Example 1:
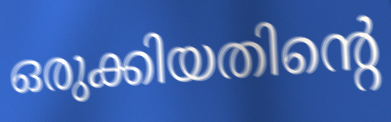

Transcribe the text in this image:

ഒരുക്കിയതിന്റെ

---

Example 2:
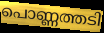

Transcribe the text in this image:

പൊണ്ണത്തടി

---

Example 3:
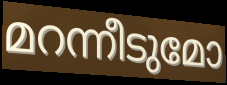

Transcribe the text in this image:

മറന്നീടുമോ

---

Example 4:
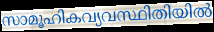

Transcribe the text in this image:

സാമൂഹികവ്യവസ്ഥിതിയിൽ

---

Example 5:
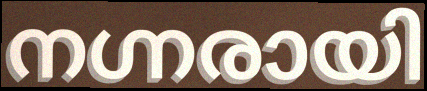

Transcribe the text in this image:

നഗ്നരായി